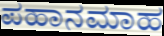
ಪಹಾನಮಾಹ